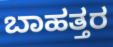
ಬಾಹತ್ತರ